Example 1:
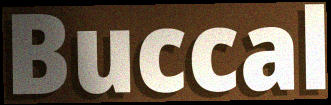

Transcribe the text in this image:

Buccal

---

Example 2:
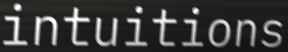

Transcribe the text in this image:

intuitions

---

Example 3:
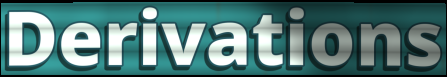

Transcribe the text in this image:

Derivations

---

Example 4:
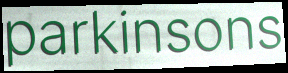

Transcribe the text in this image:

parkinsons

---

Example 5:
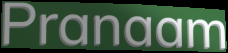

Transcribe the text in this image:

Pranaam